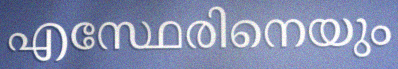
എസ്ഥേരിനെയും